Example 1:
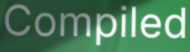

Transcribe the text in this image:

Compiled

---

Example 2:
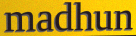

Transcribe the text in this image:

madhun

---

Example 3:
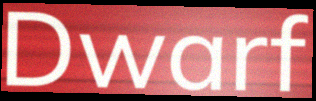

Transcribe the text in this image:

Dwarf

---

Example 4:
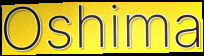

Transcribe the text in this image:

Oshima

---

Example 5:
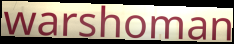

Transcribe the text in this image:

warshoman